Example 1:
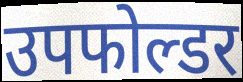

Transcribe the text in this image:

उपफोल्डर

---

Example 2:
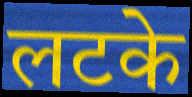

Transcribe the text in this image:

लटके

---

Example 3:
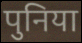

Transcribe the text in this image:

पुनिया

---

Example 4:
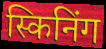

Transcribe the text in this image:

स्किनिंग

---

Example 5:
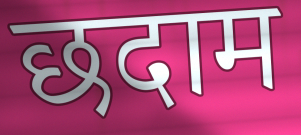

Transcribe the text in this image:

छदाम